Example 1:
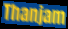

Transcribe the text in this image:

Thanjam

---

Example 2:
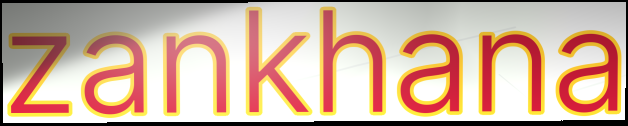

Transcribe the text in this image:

zankhana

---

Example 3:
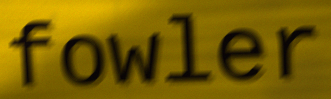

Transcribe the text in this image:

fowler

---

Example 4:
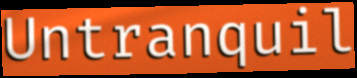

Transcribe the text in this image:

Untranquil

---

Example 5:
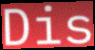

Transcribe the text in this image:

Dis